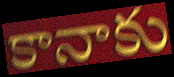
కానాకు